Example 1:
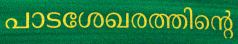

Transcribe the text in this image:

പാടശേഖരത്തിന്റെ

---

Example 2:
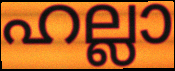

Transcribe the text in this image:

ഹല്ലാ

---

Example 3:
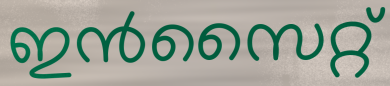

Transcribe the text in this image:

ഇൻസൈറ്റ്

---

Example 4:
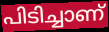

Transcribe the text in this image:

പിടിച്ചാണ്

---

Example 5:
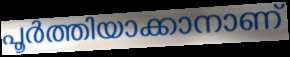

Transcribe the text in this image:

പൂർത്തിയാക്കാനാണ്